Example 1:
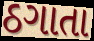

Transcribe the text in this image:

ઠગાતા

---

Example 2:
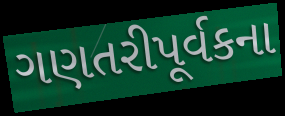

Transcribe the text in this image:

ગણતરીપૂર્વકના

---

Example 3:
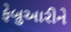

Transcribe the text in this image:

ફેબ્રુઆરીને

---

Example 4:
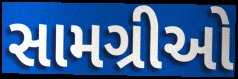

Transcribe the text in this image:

સામગ્રીઓ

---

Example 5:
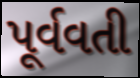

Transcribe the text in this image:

પૂર્વવતી